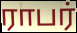
ராபர்